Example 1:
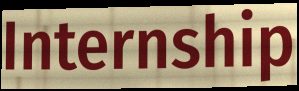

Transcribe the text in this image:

Internship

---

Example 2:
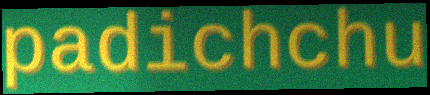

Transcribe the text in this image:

padichchu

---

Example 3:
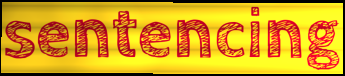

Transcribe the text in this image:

sentencing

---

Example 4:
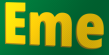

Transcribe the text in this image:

Eme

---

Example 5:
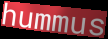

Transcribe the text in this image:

hummus